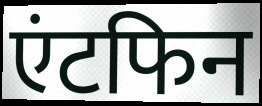
एंटफिन